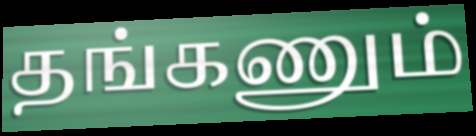
தங்கணும்